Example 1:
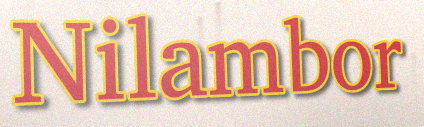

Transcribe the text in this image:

Nilambor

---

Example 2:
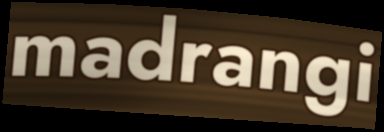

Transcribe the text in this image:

madrangi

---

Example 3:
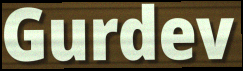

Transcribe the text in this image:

Gurdev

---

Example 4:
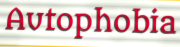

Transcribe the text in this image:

Autophobia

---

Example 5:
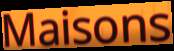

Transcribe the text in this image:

Maisons